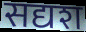
सद्यश